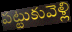
పట్టుకువెళ్లి